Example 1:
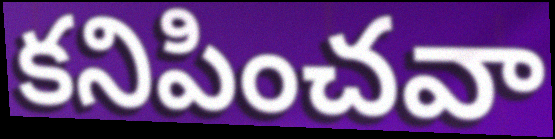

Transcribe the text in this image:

కనిపించవా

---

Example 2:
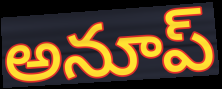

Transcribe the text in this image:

అనూప్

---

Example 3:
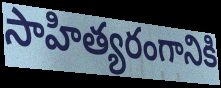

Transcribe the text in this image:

సాహిత్యరంగానికి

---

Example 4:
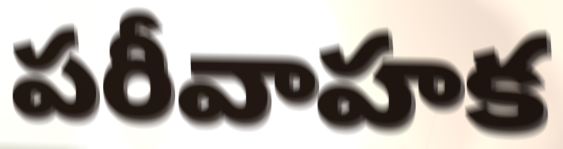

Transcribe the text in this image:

పరీవాహక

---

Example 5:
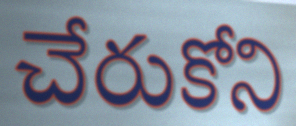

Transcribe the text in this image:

చేరుకోని